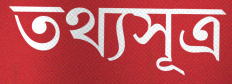
তথ্যসূত্র